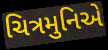
ચિત્રમુનિએ